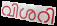
വിശറി